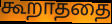
கூறாததை